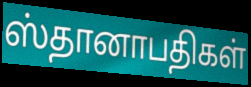
ஸ்தானாபதிகள்